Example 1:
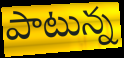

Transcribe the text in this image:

పాటున్న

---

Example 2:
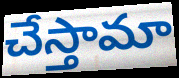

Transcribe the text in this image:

చేస్తామా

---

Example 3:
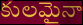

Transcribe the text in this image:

కులమైనా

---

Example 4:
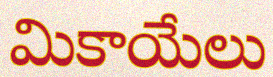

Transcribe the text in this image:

మికాయేలు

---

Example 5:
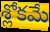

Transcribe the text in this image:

శ్లోకమే